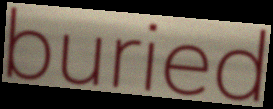
buried